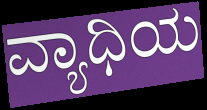
ವ್ಯಾಧಿಯ